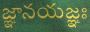
జ్ఞానయజ్ఞః